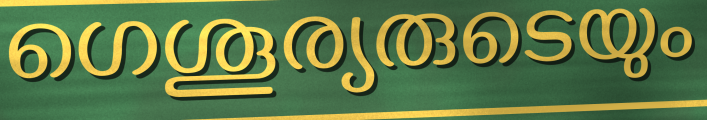
ഗെശൂര്യരുടെയും